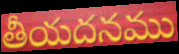
తీయదనము